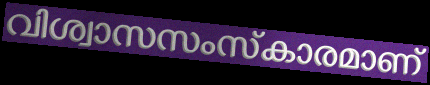
വിശ്വാസസംസ്‌കാരമാണ്